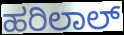
ಹರಿಲಾಲ್